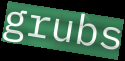
grubs